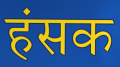
हंसक